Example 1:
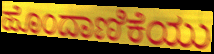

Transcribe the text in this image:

ಹೊಂದಾಣಿಕೆಯು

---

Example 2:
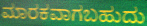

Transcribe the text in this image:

ಮಾರಕವಾಗಬಹುದು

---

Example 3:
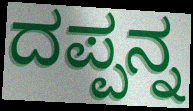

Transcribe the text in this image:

ದಪ್ಪನ್ನ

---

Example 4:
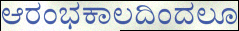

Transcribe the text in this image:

ಆರಂಭಕಾಲದಿಂದಲೂ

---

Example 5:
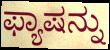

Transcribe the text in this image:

ಫ್ಯಾಷನ್ನು